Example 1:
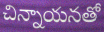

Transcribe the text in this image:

చిన్నాయనతో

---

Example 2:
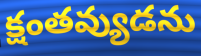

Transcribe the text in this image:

క్షంతవ్యుడను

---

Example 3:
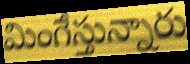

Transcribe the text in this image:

మింగేస్తున్నారు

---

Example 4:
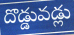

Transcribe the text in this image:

దొడ్డువడ్లు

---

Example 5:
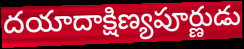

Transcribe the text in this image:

దయాదాక్షిణ్యపూర్ణుడు